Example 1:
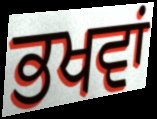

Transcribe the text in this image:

ਭਖਵਾਂ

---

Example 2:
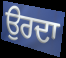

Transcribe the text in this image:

ਉਰਦਾ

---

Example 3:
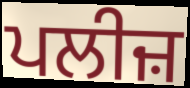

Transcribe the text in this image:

ਪਲੀਜ਼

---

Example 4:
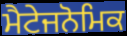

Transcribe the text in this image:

ਮੈਟੇਜਨੋਮਿਕ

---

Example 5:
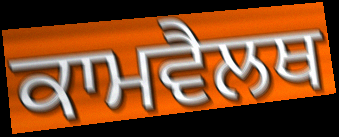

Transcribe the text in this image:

ਕਾਮਵੈਲਥ